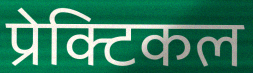
प्रेक्टिकल